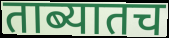
ताब्यातच